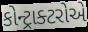
કોન્ટ્રાક્ટરોએ